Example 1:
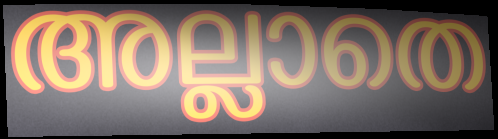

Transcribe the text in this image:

അല്ലാതെ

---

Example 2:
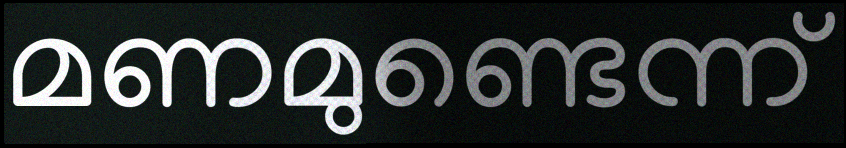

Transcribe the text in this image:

മണമുണ്ടെന്ന്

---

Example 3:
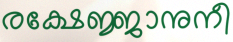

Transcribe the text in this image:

രക്ഷേജ്ജാനുനീ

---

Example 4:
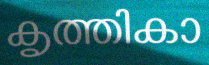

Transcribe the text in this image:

കൃത്തികാ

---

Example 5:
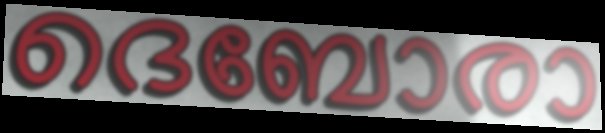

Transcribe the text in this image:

ദെബോരാ